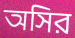
অসির